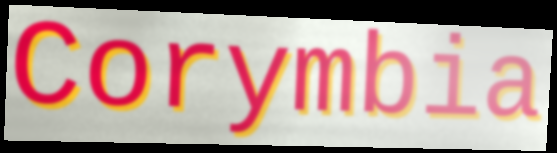
Corymbia